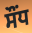
ਸੌਂਧ